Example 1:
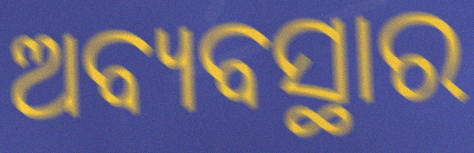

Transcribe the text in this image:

ଅବ୍ୟବସ୍ଥାର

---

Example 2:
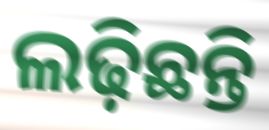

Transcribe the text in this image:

ଲଢ଼ିଛନ୍ତି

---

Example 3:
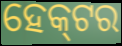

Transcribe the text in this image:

ହେକ୍‌ଟର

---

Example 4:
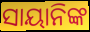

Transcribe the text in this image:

ସାୟାନିଙ୍କ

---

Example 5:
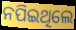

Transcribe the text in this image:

ନପିଇଥିଲେ